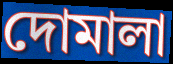
দোমালা